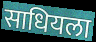
साधियला